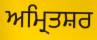
ਅਮ੍ਰਿਤਸ਼ਰ